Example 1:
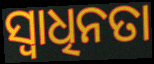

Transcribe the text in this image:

ସ୍ୱାଧିନତା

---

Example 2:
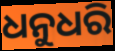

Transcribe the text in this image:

ଧନୁଧରି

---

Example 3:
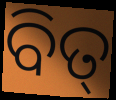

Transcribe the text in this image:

ବିତ୍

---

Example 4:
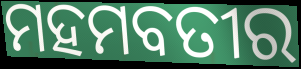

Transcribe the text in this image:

ମହମବତୀର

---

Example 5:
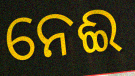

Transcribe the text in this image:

ନେଈ